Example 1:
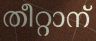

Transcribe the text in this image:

തീറ്റാന്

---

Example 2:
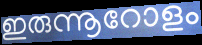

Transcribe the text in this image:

ഇരുന്നൂറോളം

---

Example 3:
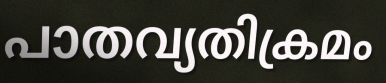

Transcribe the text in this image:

പാതവ്യതിക്രമം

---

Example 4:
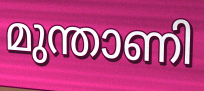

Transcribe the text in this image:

മുന്താണി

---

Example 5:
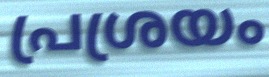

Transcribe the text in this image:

പ്രശ്രയം